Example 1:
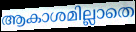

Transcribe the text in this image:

ആകാശമില്ലാതെ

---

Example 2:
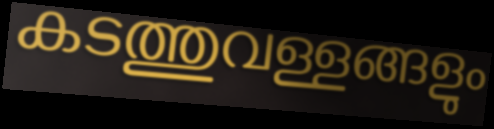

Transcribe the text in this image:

കടത്തുവള്ളങ്ങളും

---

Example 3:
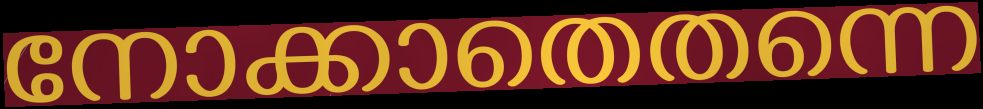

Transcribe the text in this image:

നോക്കാതെതന്നെ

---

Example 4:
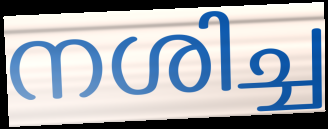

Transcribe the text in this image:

നശിച്ച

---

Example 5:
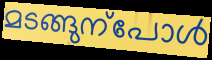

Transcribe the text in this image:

മടങ്ങുന്പോൾ